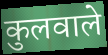
कुलवाले